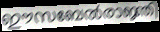
ഈസബേൽരാജ്ഞി